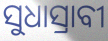
ସୁଧାସ୍ରାବୀ